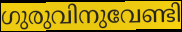
ഗുരുവിനുവേണ്ടി